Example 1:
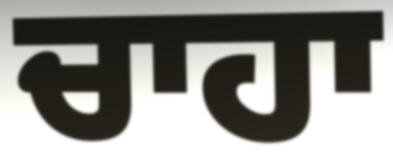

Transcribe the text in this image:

ਚਾਹਾ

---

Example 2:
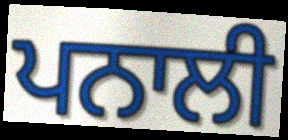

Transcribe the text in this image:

ਪਨਾਲੀ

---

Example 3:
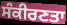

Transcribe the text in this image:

ਸੰਕੀਰਣਤਾ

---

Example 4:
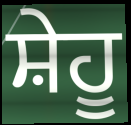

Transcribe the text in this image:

ਸ਼ੇਹੂ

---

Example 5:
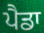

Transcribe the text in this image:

ਪੈਡਾ